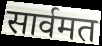
सार्वमत